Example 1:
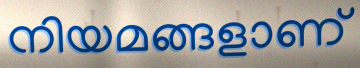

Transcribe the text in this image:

നിയമങ്ങളാണ്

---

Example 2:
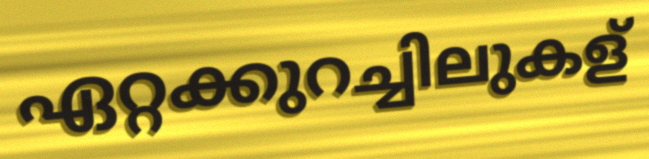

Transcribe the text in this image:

ഏറ്റക്കുറച്ചിലുകള്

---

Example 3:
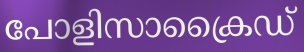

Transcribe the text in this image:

പോളിസാക്രൈഡ്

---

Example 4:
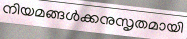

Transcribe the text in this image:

നിയമങ്ങൾക്കനുസൃതമായി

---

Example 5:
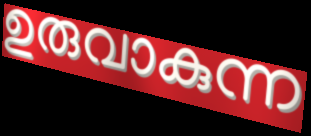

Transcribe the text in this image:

ഉരുവാകുന്ന